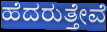
ಹೆದರುತ್ತೇವೆ